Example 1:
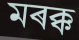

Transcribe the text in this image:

মৰক্ক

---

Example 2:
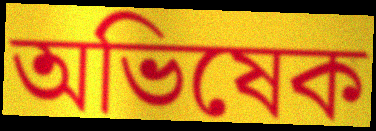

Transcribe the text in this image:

অভিষেক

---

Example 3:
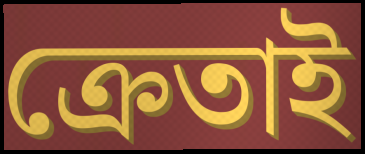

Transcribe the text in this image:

ক্ৰেতাই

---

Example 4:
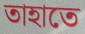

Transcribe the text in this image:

তাহাতে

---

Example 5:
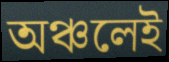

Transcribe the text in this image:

অঞ্চলেই